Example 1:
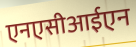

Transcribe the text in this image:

एनएसीआईएन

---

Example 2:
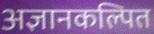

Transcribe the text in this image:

अज्ञानकल्पित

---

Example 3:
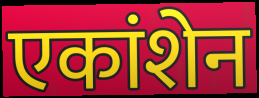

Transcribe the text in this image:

एकांशेन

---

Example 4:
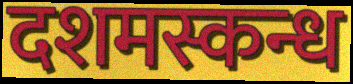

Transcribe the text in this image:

दशमस्कन्ध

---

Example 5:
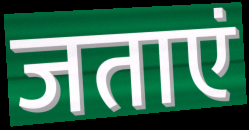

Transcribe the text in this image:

जताएं